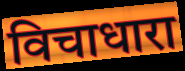
विचाधारा